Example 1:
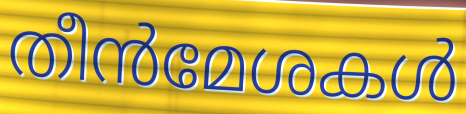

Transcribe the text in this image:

തീൻമേശകൾ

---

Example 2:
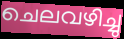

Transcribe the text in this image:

ചെലവഴിച്ചു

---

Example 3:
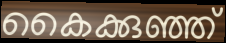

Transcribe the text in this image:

കൈക്കുഞ്ഞ്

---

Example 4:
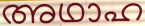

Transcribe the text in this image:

അഥാഹ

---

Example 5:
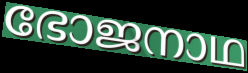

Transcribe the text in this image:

ഭോജനാഥ